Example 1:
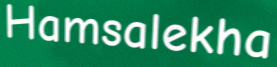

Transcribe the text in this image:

Hamsalekha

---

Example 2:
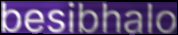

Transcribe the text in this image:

besibhalo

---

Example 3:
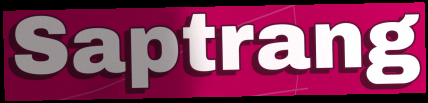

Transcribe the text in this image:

Saptrang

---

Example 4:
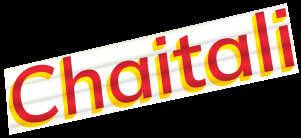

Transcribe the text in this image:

Chaitali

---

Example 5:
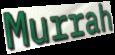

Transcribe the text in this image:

Murrah